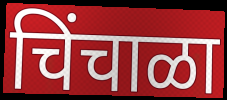
चिंचाळा